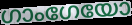
ഗാംഗേയോ